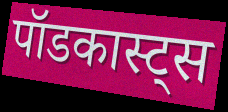
पॉडकास्ट्स